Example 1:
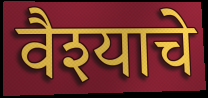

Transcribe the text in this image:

वैश्याचे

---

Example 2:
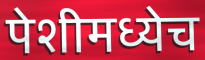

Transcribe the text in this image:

पेशीमध्येच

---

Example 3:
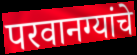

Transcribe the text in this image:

परवानग्यांचे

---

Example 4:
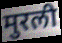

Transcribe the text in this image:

मुरली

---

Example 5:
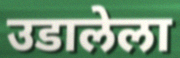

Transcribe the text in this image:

उडालेला